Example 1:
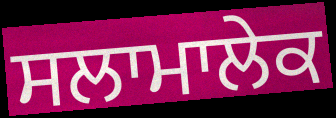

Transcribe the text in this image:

ਸਲਾਮਾਲੇਕ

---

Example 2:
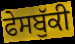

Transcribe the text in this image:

ਫੇਸਬੁੱਕੀ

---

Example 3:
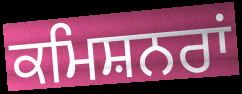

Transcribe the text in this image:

ਕਮਿਸ਼ਨਰਾਂ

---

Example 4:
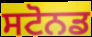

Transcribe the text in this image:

ਸਟੋਨਡ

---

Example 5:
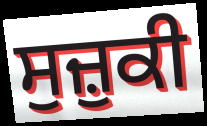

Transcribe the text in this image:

ਸੁਜ਼ੁਕੀ